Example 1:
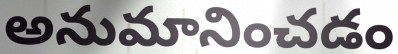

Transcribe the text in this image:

అనుమానించడం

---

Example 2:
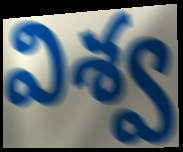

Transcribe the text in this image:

విశ్వ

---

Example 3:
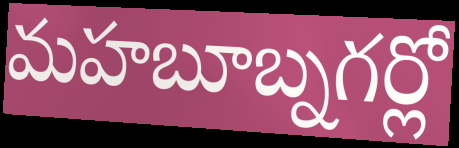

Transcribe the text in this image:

మహబూబ్నగర్లో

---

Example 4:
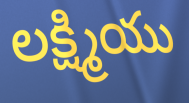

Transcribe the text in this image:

లక్ష్మియు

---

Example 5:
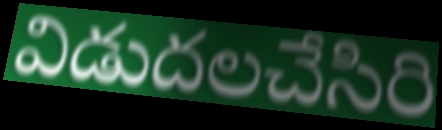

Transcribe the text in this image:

విడుదలచేసిరి